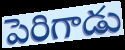
పెరిగాడు